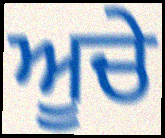
ਅੂਚੇ